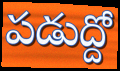
పడుద్దో